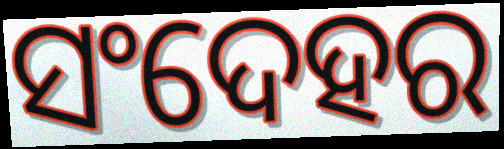
ସଂଦେହର